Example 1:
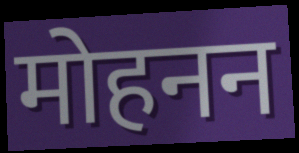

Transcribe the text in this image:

मोहनन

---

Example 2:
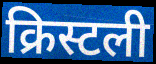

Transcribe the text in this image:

क्रिस्टली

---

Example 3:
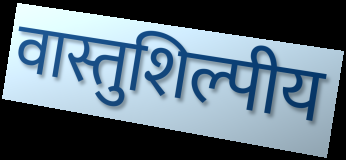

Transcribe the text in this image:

वास्तुशिल्पीय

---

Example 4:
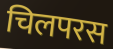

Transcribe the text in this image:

चिलपरस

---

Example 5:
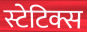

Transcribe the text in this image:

स्टेटिक्स